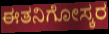
ಈತನಿಗೋಸ್ಕರ